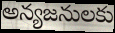
అన్యజనులకు